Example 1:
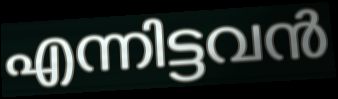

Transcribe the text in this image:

എന്നിട്ടവൻ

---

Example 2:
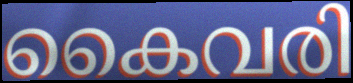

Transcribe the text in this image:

കൈവരി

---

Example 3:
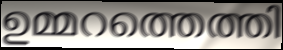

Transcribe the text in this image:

ഉമ്മറത്തെത്തി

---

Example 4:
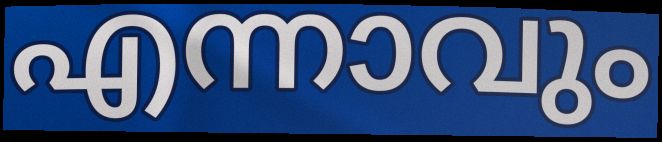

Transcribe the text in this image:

എന്നാവും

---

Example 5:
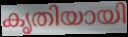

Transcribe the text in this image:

കൃതിയായി